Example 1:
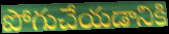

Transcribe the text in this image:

పోగుచేయడానికి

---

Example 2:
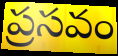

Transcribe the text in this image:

ప్రసవం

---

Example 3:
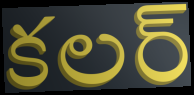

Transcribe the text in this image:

కలర్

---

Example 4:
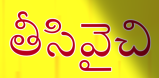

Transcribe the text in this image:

తీసివైచి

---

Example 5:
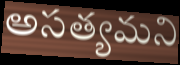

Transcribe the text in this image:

అసత్యమని